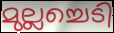
മുല്ലച്ചെടി